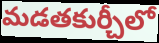
మడతకుర్చీలో